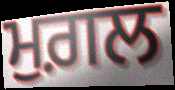
ਮੁਗ਼ਲ